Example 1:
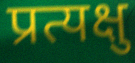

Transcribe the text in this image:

प्रत्यक्षु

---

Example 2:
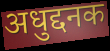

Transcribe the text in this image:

अधुद्दनक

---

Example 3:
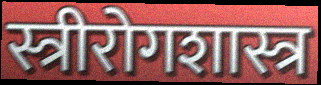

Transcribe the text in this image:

स्त्रीरोगशास्त्र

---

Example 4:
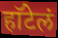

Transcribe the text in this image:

हॉटेलं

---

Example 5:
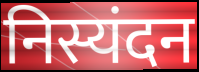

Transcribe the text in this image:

निस्यंदन